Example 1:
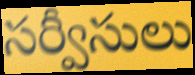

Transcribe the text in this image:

సర్వీసులు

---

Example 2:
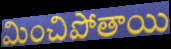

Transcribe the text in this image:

మించిపోతాయి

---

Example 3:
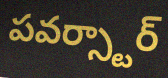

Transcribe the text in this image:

పవర్స్టార్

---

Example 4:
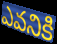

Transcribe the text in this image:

ఎవనికి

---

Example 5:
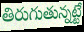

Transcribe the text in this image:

తిరుగుతున్నట్టే